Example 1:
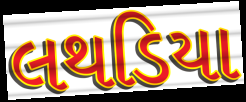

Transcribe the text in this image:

લથડિયા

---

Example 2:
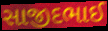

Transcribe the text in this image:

સાજીદભાઈ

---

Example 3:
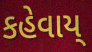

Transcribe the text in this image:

કહેવાય્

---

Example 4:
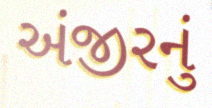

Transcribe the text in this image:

અંજીરનું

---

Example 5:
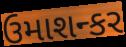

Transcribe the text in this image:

ઉમાશન્કર